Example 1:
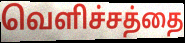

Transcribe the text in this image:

வெளிச்சத்தை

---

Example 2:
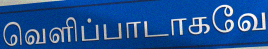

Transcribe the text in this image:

வெளிப்பாடாகவே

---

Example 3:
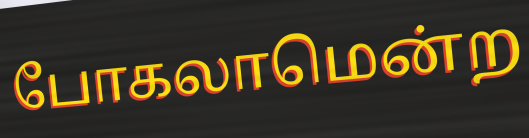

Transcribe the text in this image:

போகலாமென்ற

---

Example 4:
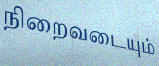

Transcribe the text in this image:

நிறைவடையும்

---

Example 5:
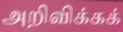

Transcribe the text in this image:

அறிவிக்கக்